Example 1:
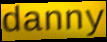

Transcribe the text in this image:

danny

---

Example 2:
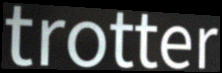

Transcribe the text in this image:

trotter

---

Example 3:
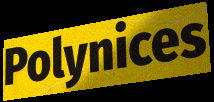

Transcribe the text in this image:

Polynices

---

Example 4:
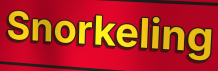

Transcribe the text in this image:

Snorkeling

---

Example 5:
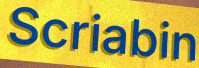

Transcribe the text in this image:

Scriabin